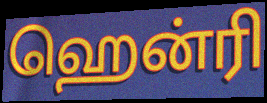
ஹென்ரி